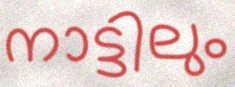
നാട്ടിലും